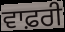
ਵਾਫ਼ਰੀ